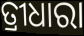
ତ୍ରୀଧାରା